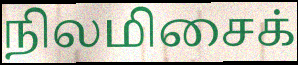
நிலமிசைக்